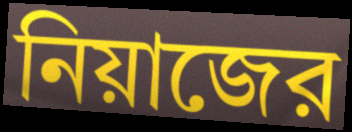
নিয়াজের